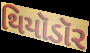
થિયૉડૉર